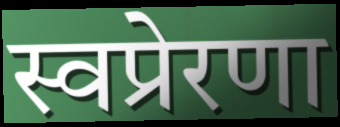
स्वप्रेरणा